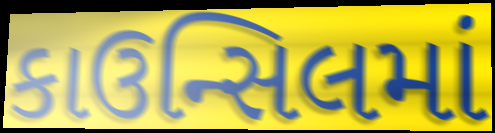
કાઉન્સિલમાં